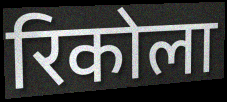
रिकोला